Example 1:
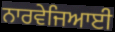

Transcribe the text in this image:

ਨਾਰਵੇਜਿਆਈ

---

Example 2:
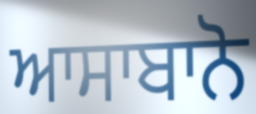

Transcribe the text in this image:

ਆਸਾਬਾਨੋ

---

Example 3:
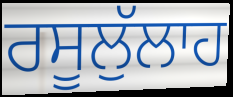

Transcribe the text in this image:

ਰਸੂਲੁੱਲਾਹ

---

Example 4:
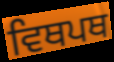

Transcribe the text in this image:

ਵਿਥਪਥ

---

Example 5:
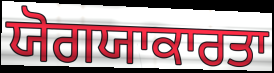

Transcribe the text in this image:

ਯੋਗਯਾਕਾਰਤਾ